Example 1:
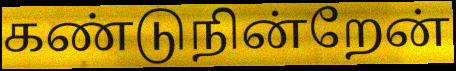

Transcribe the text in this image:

கண்டுநின்றேன்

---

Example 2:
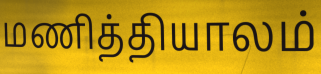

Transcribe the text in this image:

மணித்தியாலம்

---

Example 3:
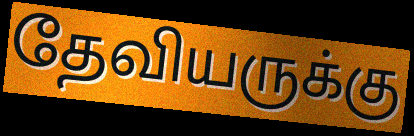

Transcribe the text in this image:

தேவியருக்கு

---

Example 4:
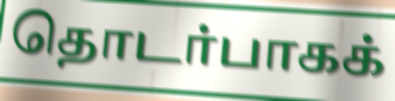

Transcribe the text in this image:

தொடர்பாகக்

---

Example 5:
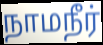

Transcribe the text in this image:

நாமநீர்